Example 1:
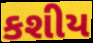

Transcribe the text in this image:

કશીય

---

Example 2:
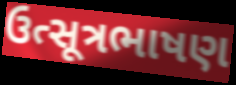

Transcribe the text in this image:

ઉત્સૂત્રભાષણ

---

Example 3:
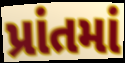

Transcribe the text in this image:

પ્રાંતમાં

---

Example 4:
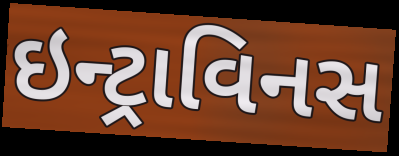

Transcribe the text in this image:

ઇન્ટ્રાવિનસ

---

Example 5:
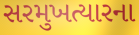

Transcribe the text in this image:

સરમુખત્યારના